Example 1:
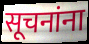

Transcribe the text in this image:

सूचनांना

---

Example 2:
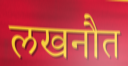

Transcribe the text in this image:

लखनौत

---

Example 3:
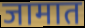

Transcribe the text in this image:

जामात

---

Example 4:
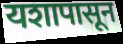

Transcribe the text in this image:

यशापासून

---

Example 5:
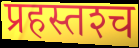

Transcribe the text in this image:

प्रहस्तश्च